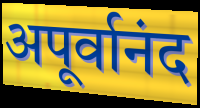
अपूर्वानंद